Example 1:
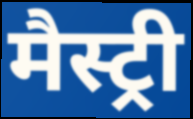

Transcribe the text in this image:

मैस्ट्री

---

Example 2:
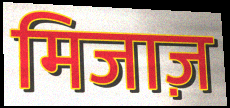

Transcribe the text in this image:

मिजाज़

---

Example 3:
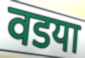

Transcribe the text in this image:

वडया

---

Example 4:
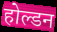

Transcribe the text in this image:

होल्डन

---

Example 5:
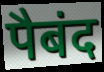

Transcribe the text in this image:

पैबंद